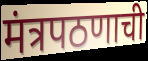
मंत्रपठणाची